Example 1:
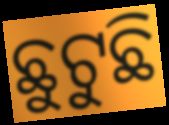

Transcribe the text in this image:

ଛୁଟୁଛି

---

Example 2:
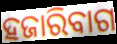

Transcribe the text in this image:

ହଜାରିବାଗ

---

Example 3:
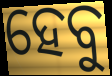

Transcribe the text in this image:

ହେବୁ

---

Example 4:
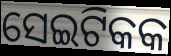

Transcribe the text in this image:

ସେଇଟିକକ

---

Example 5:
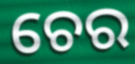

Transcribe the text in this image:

ଚେର